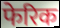
फेरिक